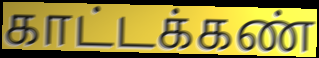
காட்டக்கண்